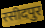
रसीदपुर